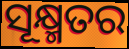
ସୂକ୍ଷ୍ମତର